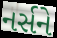
નર્સને